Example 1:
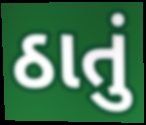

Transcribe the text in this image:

ઠાતું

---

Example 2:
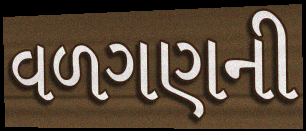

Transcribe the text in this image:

વળગણની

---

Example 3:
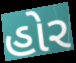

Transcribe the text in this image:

હોર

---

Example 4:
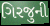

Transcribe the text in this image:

ગિરજુની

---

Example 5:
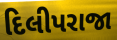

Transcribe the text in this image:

દિલીપરાજા